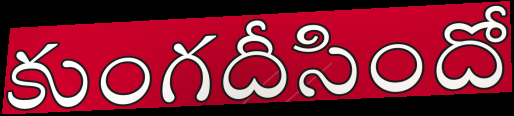
కుంగదీసిందో